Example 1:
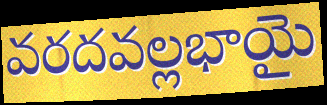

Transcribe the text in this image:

వరదవల్లభాయై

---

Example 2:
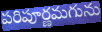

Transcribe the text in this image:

పరిపూర్ణమగును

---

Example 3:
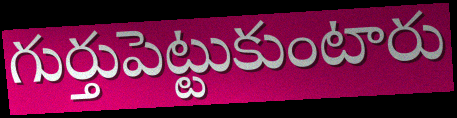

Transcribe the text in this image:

గుర్తుపెట్టుకుంటారు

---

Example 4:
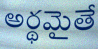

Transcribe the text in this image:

అర్థమైతే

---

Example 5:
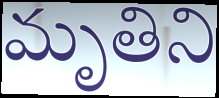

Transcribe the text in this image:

మృతిని